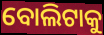
ବୋଲିଟାକୁ